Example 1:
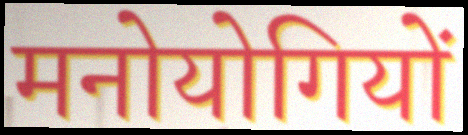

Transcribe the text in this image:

मनोयोगियों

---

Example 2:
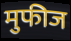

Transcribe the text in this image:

मुफीज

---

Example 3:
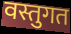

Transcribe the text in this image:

वस्तुगत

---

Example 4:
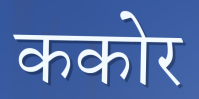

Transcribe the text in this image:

ककोर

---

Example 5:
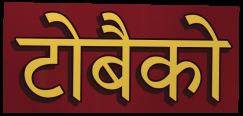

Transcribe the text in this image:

टोबैको